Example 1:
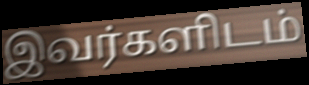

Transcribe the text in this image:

இவர்களிடம்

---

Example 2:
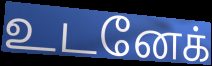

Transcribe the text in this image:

உடனேக்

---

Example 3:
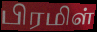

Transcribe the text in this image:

பிரமிள்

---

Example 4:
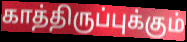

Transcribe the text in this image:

காத்திருப்புக்கும்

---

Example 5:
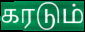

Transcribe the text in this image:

கரடும்